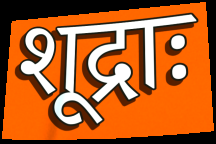
शूद्राः